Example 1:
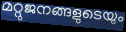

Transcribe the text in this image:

മറ്റുജനങ്ങളുടെയും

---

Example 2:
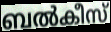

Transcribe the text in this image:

ബൽകീസ്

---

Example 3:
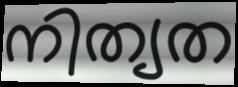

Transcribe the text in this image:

നിത്യത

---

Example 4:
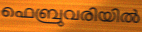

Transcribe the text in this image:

ഫെബ്രുവരിയിൽ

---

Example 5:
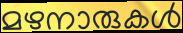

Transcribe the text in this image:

മഴനാരുകൾ